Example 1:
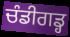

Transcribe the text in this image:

ਚੰਡੀਗਡ੍ਹ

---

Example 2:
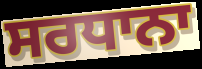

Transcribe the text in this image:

ਸਰਧਾਨਾ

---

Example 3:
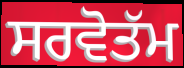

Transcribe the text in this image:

ਸਰਵੋਤੱਮ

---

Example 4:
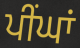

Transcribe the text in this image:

ਪੀਂਘਾਂ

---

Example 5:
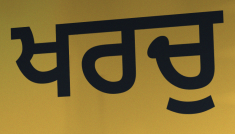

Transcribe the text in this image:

ਖਰਚੁ